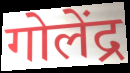
गोलेंद्र